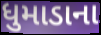
ધુમાડાના